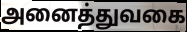
அனைத்துவகை